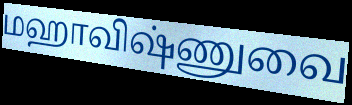
மஹாவிஷ்ணுவை